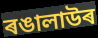
ৰঙালাউৰ